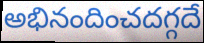
అభినందించదగ్గదే